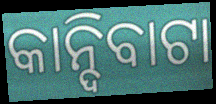
କାନ୍ଦିବାଟା